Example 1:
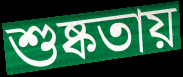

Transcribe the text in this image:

শুষ্কতায়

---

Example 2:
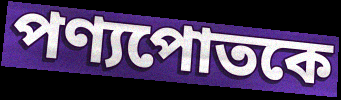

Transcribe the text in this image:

পণ্যপোতকে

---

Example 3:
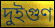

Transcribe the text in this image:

দুইগুণ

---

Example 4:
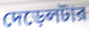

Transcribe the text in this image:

দেড়েলটার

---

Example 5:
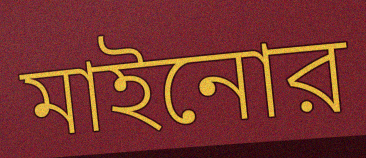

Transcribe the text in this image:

মাইনোর